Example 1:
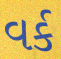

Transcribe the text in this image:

વર્ક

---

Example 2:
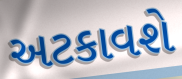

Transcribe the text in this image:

અટકાવશે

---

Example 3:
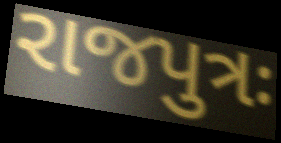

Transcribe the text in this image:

રાજપુત્રઃ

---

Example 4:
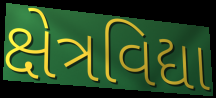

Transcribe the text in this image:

ક્ષેત્રવિદ્યા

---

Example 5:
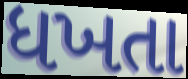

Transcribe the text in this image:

ધખતા